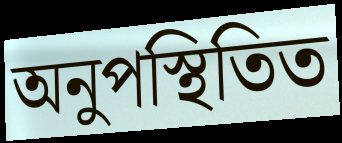
অনুপস্থিতিত